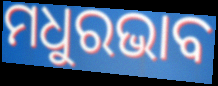
ମଧୁରଭାବ